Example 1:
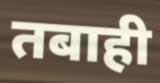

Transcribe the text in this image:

तबाही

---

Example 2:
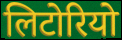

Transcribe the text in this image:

लिटोरियो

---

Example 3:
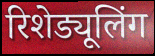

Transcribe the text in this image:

रिशेड्यूलिंग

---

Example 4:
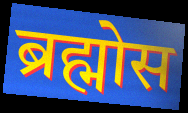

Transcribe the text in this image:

ब्रह्मोस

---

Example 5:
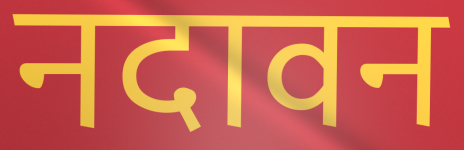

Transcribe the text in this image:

नदावन